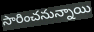
సారించనున్నాయి